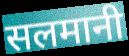
सलमानी